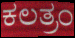
ಕಲತ್ರಂ